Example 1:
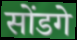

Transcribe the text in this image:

सोंडगे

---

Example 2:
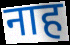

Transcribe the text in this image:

नाह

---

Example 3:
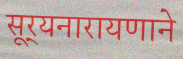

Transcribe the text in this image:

सूर्यनारायणाने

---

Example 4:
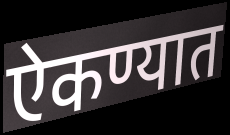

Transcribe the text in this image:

ऐकण्यात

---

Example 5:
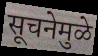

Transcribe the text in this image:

सूचनेमुळे